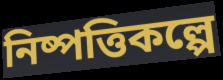
নিষ্পত্তিকল্পে